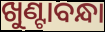
ଖୁଣ୍ଟାବନ୍ଧା